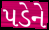
પડેને